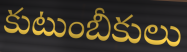
కుటుంబీకులు